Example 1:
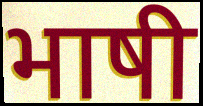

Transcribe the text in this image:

भाषी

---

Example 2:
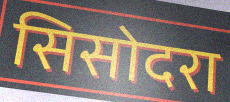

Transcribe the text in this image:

सिसोदरा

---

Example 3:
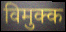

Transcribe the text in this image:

विमुक्क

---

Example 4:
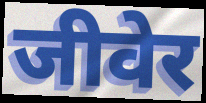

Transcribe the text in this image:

जीवेर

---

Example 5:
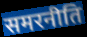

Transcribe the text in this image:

समरनीति